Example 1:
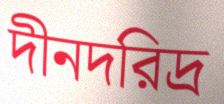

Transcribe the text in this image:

দীনদরিদ্র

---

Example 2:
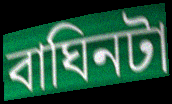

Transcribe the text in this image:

বাঘিনটা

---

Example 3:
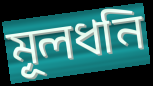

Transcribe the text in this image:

মূলধনি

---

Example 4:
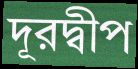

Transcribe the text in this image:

দূরদ্বীপ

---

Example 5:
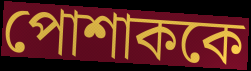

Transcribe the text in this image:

পোশাককে